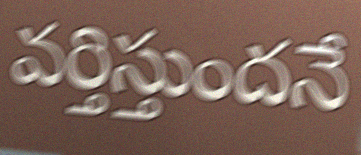
వర్తిస్తుందనే